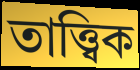
তাত্ত্বিক